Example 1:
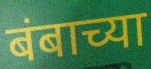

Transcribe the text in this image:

बंबाच्या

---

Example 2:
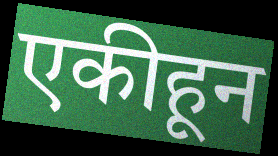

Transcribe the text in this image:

एकीहून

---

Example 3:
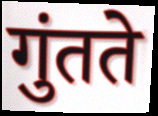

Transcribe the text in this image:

गुंतते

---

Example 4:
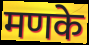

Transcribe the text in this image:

मणके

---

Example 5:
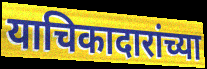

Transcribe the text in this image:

याचिकादारांच्या